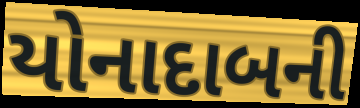
યોનાદાબની